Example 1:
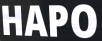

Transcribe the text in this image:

HAPO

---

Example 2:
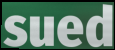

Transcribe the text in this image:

sued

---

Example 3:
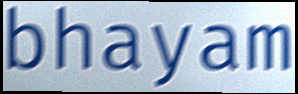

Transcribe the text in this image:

bhayam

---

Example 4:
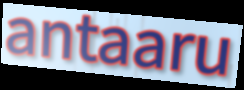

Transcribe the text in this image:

antaaru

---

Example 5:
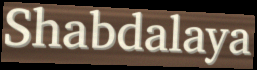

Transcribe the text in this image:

Shabdalaya